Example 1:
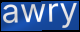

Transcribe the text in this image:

awry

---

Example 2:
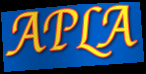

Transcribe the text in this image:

APLA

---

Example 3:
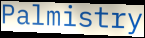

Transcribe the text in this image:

Palmistry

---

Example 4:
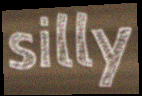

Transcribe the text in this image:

silly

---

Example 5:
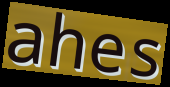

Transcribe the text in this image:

ahes